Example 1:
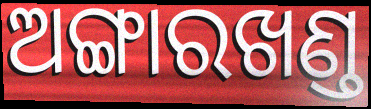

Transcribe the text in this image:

ଅଙ୍ଗାରଖଣ୍ଡ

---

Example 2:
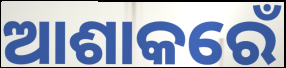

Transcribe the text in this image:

ଆଶାକରେଁ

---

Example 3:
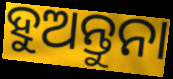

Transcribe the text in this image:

ହୁଅନ୍ତୁନା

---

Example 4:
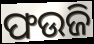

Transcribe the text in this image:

ଫଉଜି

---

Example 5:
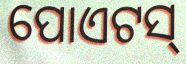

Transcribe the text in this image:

ପୋଏଟସ୍